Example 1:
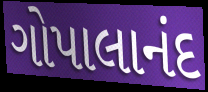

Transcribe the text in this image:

ગોપાલાનંદ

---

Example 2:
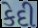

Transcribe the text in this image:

કેદી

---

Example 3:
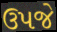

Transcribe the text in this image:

ઉપજે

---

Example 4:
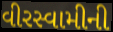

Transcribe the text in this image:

વીરસ્વામીની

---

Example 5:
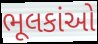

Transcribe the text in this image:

ભૂલકાંઓ